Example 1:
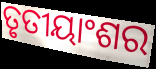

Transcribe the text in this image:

ତୃତୀୟାଂଶର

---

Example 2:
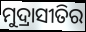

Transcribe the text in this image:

ମୁଦ୍ରାସୀତିର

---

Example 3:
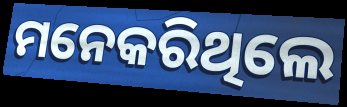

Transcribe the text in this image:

ମନେକରିଥିଲେ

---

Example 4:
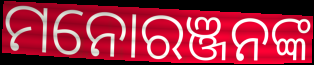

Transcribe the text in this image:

ମନୋରଞ୍ଜନଙ୍କ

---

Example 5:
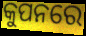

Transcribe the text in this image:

କୁପନରେ